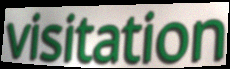
visitation